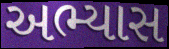
અભ્યાસ